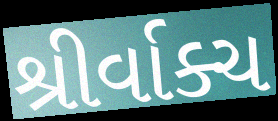
શ્રીર્વાક્ચ